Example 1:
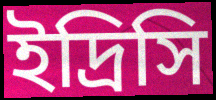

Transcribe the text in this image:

ইদ্রিসি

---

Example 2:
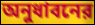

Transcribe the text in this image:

অনুধাবনের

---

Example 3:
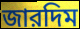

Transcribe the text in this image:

জারদিম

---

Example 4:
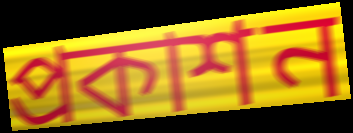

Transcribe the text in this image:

প্রকাশন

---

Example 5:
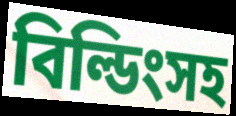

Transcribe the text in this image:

বিল্ডিংসহ